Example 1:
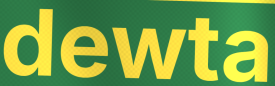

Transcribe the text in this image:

dewta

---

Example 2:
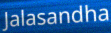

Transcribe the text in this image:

Jalasandha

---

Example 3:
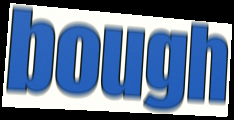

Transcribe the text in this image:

bough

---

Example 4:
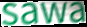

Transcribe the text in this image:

sawa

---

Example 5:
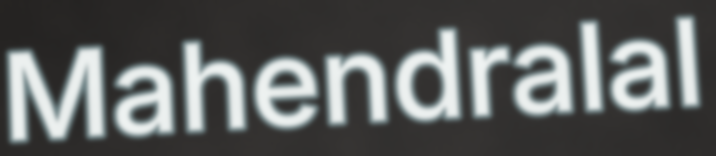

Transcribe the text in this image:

Mahendralal